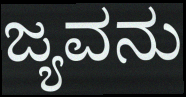
ಜ್ಯವನು